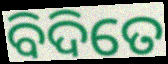
ବିଦିତେ